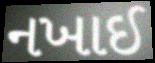
નખાઈ